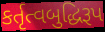
કર્તૃત્વબુદ્ધિરૂપ